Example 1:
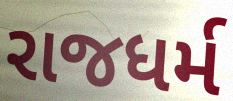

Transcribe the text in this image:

રાજધર્મ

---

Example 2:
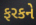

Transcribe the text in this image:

ફરકને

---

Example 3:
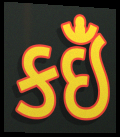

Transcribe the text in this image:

કઇઁં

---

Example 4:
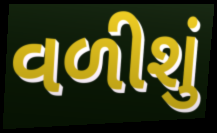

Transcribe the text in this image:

વળીશું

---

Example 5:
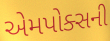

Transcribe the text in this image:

એમપોક્સની